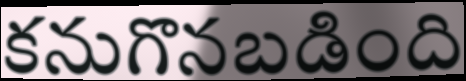
కనుగొనబడింది